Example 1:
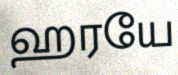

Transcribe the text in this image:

ஹரயே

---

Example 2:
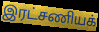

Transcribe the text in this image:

இரட்சணியக்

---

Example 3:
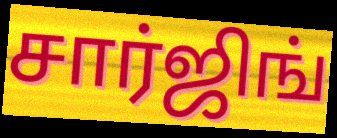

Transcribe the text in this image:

சார்ஜிங்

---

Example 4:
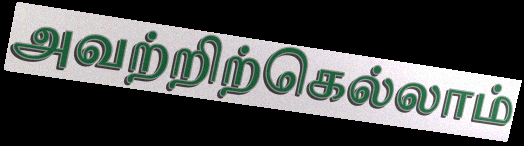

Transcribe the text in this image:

அவற்றிற்கெல்லாம்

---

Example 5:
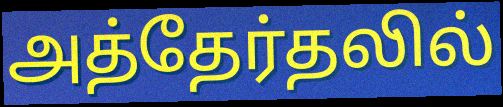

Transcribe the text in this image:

அத்தேர்தலில்